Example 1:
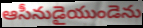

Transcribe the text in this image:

ఆసీనుడైయుండెను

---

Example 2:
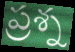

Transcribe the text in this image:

ప్రశ్న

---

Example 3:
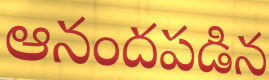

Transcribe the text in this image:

ఆనందపడిన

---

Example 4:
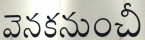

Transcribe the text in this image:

వెనకనుంచీ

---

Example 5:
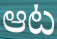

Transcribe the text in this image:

ఆట